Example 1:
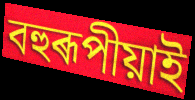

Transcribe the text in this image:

বহুৰূপীয়াই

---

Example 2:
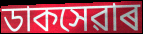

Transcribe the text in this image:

ডাকসেৱাৰ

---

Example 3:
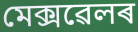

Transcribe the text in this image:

মেক্সৱেলৰ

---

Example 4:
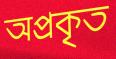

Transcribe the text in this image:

অপ্ৰকৃত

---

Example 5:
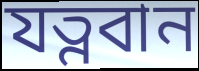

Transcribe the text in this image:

যত্নবান